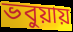
ভবুয়ায়